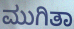
ಮುಗಿತಾ